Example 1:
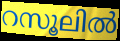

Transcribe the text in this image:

റസൂലിൽ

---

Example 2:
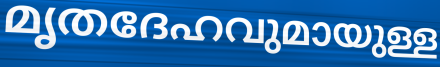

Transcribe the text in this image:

മൃതദേഹവുമായുള്ള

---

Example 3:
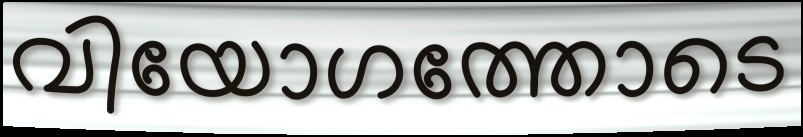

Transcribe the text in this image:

വിയോഗത്തോടെ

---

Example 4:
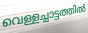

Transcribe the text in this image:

വെള്ളച്ചാട്ടത്തിൽ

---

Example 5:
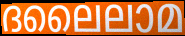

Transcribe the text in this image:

ദലൈലാമ